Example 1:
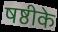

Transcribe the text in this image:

षष्ठीके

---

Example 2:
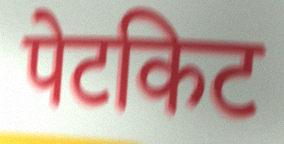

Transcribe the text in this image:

पेटकिट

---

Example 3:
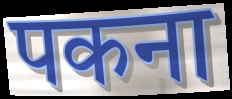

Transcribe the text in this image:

पकना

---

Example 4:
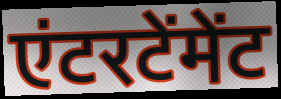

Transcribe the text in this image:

एंटरटेंमेंट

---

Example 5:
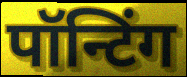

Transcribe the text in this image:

पॉन्टिंग